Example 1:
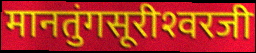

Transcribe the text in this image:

मानतुंगसूरीश्वरजी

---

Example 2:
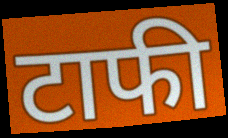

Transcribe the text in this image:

टाफी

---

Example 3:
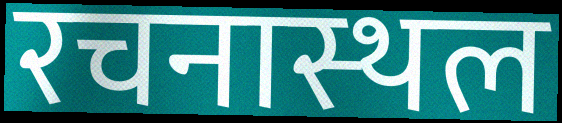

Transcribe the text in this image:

रचनास्थल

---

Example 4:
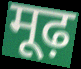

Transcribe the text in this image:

मूढ़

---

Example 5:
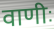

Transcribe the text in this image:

वाणीः